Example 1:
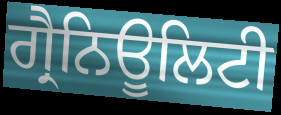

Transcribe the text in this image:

ਗ੍ਰੈਨਿਊਲਿਟੀ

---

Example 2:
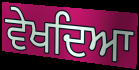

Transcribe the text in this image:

ਵੇਖਦਿਆ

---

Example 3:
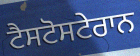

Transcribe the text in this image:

ਟੈਸਟੋਸਟੇਰਾਨ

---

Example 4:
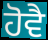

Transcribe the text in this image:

ਹੋਵੈ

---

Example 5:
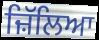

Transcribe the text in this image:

ਜ਼ਿੱਲਿਆ